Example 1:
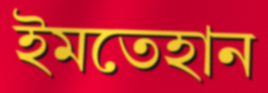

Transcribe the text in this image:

ইমতেহান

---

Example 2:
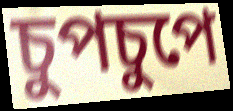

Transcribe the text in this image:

চুপচুপে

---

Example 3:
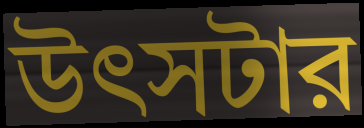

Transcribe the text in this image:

উৎসটার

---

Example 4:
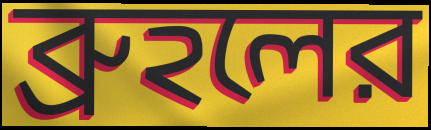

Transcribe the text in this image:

ব্রুহলের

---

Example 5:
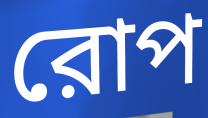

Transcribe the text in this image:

রোপ